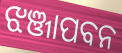
ଝଞ୍ଜାପବନ